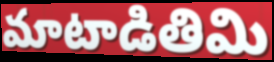
మాటాడితిమి